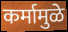
कर्मामुळे